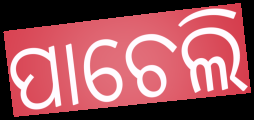
ପାଚେଲି